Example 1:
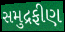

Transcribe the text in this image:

સમુદ્રફીણ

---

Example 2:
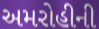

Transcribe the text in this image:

અમરોહીની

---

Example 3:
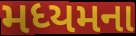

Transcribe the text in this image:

મધ્યમના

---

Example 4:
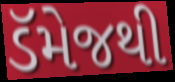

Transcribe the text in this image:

ડૅમેજથી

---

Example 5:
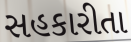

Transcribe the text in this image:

સહકારીતા